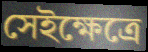
সেইক্ষেত্রে